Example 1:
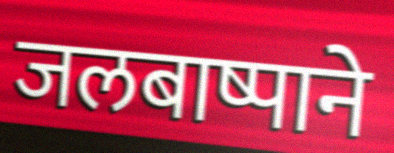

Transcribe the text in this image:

जलबाष्पाने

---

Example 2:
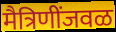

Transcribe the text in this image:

मैत्रिणींजवळ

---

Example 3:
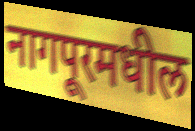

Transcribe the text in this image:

नागपूरमधील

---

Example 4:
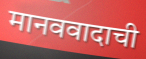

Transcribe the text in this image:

मानववादाची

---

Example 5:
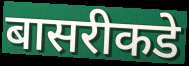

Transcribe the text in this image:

बासरीकडे